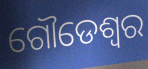
ଗୌଡେଶ୍ୱର